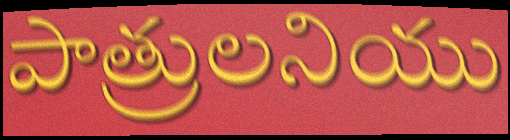
పాత్రులనియు